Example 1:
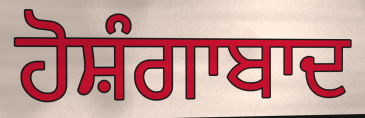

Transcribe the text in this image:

ਹੋਸ਼ੰਗਾਬਾਦ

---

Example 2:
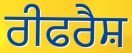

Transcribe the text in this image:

ਰੀਫਰੈਸ਼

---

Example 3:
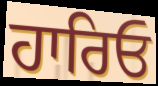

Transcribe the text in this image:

ਹਾਰਿਓ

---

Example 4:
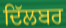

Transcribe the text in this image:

ਦਿੱਲਬਰ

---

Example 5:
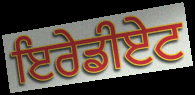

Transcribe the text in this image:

ਇਰੇਡੀਏਟ